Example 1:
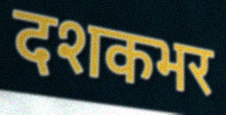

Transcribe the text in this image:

दशकभर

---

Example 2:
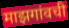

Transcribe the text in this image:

माझगांवची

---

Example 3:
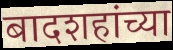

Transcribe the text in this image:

बादशहांच्या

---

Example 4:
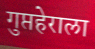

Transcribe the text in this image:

गुप्तहेराला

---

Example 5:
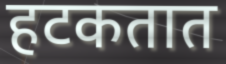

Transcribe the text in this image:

हटकतात